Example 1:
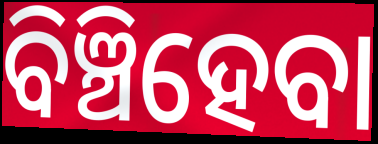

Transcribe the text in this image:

ବିଞ୍ଚିହେବା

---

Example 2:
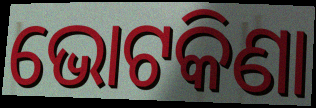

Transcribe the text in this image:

ଭୋଟକିଣା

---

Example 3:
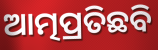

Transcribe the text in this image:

ଆତ୍ମପ୍ରତିଛବି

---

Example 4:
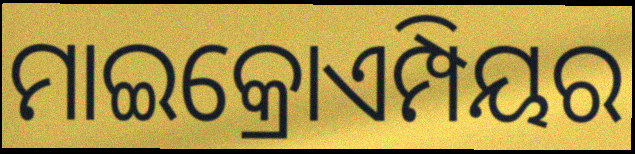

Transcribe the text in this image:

ମାଇକ୍ରୋଏମ୍ପିୟର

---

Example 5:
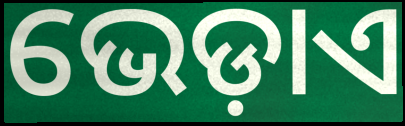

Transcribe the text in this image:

ଭେଡ଼ାଏ